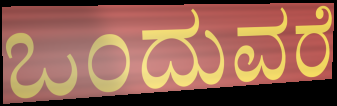
ಒಂದುವರೆ